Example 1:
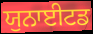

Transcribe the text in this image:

ਯੁਨਾਈਟਡ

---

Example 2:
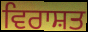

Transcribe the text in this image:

ਵਿਰਾਸ਼ਤ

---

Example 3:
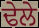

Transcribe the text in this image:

ਢੇਲੇ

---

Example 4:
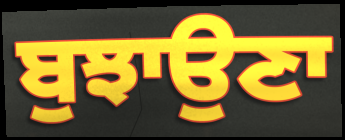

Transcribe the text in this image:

ਬੁਝਾਉਣਾ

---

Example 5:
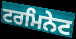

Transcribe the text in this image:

ਟਰਮਿਨੇਟ